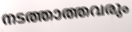
നടത്താത്തവരും